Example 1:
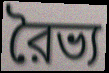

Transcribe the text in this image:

রৈভ্য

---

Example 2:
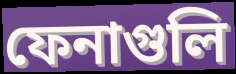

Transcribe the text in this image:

ফেনাগুলি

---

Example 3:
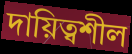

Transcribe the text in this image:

দায়িত্বশীল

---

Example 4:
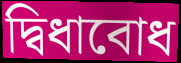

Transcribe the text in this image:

দ্বিধাবোধ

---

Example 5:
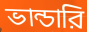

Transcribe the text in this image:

ভান্ডারি